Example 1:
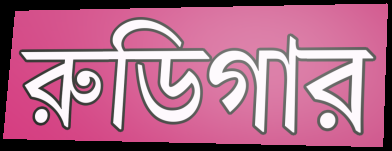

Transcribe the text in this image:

রুডিগার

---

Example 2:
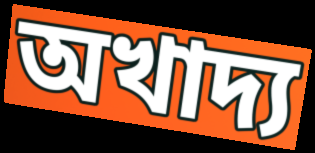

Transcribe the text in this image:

অখাদ্য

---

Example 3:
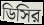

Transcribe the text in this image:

ডিসির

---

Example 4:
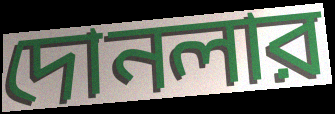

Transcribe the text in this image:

দোনলার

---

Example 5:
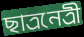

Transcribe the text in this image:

ছাত্রনেত্রী